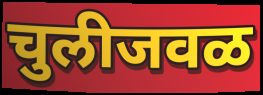
चुलीजवळ